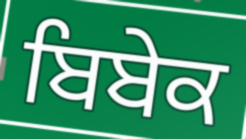
ਬਿਬੇਕ